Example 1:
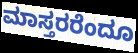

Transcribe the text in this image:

ಮಾಸ್ತರರೆಂದೂ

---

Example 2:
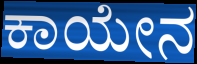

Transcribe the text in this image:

ಕಾಯೇನ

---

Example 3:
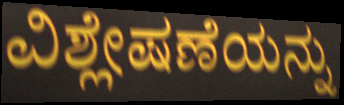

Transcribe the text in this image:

ವಿಶ್ಲೇಷಣೆಯನ್ನು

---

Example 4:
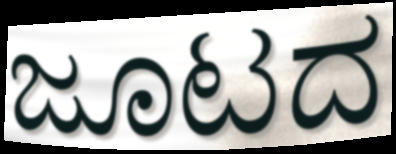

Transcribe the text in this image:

ಜೂಟದ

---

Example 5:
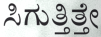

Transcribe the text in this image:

ಸಿಗುತ್ತಿತ್ತೇ